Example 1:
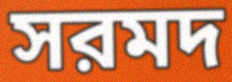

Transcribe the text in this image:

সরমদ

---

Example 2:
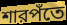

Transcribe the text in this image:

শারপঁতে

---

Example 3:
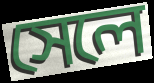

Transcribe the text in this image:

সেলে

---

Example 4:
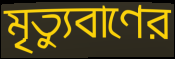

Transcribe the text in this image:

মৃত্যুবাণের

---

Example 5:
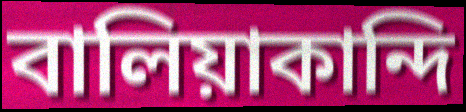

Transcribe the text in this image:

বালিয়াকান্দি